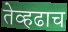
तेव्हढाच